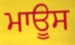
ਮਾਊਸ